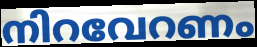
നിറവേറണം